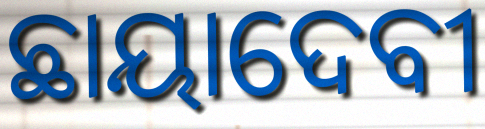
ଛାୟାଦେବୀ